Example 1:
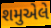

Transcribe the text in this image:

શમુએલે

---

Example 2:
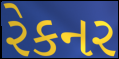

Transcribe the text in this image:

રેકનર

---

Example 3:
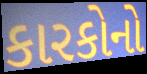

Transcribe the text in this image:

કારકોનો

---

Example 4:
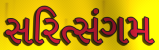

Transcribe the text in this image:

સરિત્સંગમ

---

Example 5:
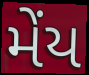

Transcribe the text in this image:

મેંય